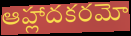
ఆహ్లాదకరమో